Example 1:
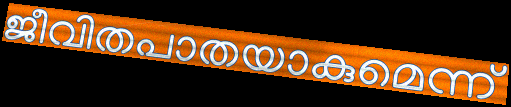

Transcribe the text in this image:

ജീവിതപാതയാകുമെന്ന്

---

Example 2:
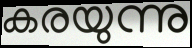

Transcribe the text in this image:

കരയുന്നു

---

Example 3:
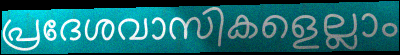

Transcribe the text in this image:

പ്രദേശവാസികളെല്ലാം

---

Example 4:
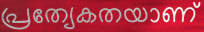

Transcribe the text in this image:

പ്രത്യേകതയാണ്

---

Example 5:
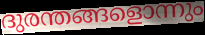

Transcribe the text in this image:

ദുരന്തങ്ങളൊന്നും